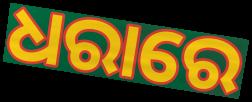
ଧରାରେ